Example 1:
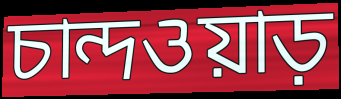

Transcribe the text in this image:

চান্দওয়াড়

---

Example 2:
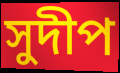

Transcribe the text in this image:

সুদীপ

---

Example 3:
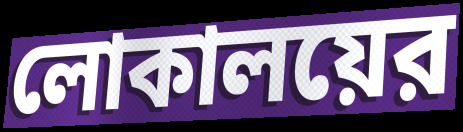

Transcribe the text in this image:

লোকালয়ের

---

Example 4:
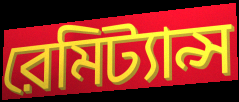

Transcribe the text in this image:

রেমিট্যান্স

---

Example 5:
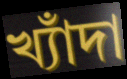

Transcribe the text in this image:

খ্যাঁদা